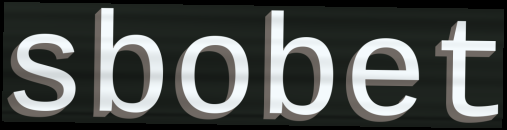
sbobet